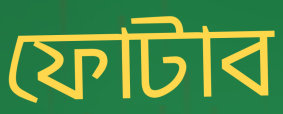
ফোটাব